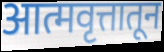
आत्मवृत्तातून